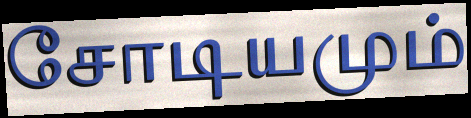
சோடியமும்